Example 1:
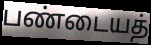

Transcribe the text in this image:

பண்டையத்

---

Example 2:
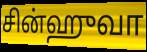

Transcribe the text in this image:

சின்ஹுவா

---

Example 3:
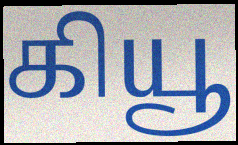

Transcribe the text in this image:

கியூ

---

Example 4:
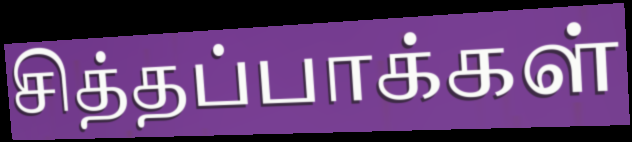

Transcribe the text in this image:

சித்தப்பாக்கள்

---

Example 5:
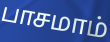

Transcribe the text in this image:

பாசமாம்